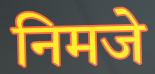
निमजे